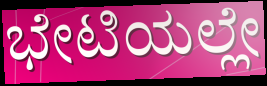
ಭೇಟಿಯಲ್ಲೇ